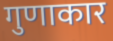
गुणाकार